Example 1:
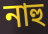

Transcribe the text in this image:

নাহু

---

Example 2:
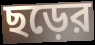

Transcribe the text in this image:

ছড়ের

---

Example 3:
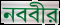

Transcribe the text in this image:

নববীর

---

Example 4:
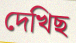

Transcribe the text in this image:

দেখিছ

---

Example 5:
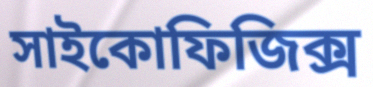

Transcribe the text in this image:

সাইকোফিজিক্স